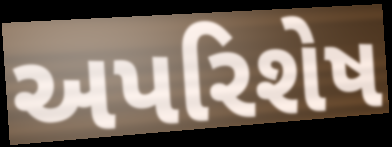
અપરિશેષ